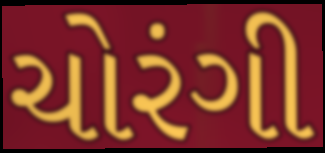
ચોરંગી